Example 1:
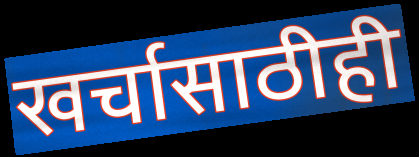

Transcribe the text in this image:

खर्चासाठीही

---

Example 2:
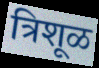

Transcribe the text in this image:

त्रिशूळ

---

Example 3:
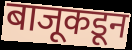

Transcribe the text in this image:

बाजूकडून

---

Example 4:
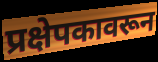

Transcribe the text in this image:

प्रक्षेपकावरून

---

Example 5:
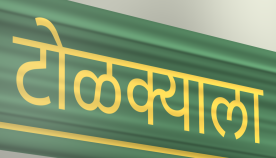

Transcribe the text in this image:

टोळक्याला